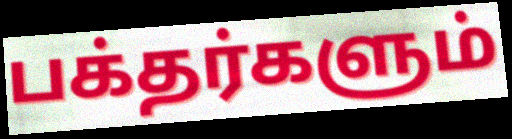
பக்தர்களும்